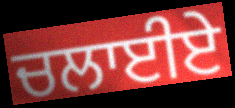
ਚਲਾਈਏ